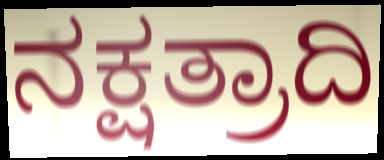
ನಕ್ಷತ್ರಾದಿ